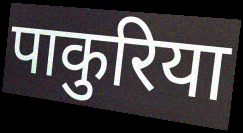
पाकुरिया